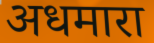
अधमारा